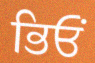
ਭਿਓਂ